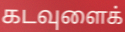
கடவுளைக்